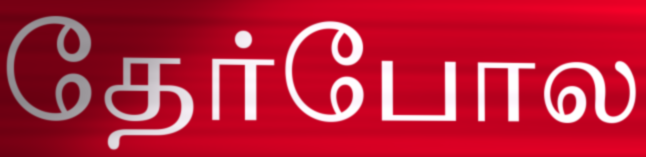
தேர்போல